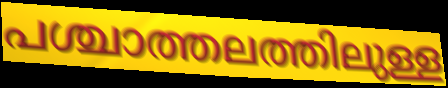
പശ്ചാത്തലത്തിലുള്ള